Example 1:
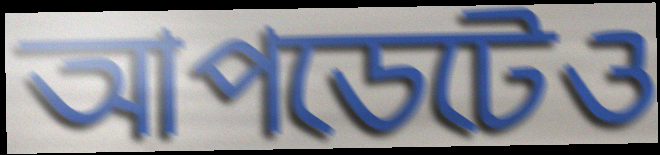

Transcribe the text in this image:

আপডেটেও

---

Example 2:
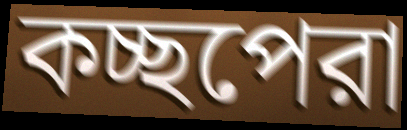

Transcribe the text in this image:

কচ্ছপেরা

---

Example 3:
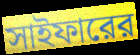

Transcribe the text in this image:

সাইফারের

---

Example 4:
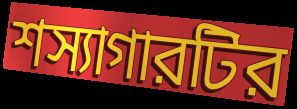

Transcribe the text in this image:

শস্যাগারটির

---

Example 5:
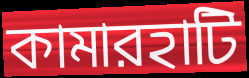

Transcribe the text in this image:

কামারহাটি